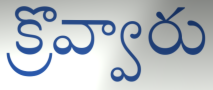
క్రొవ్వారు